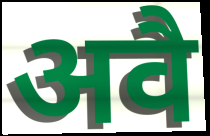
अवै